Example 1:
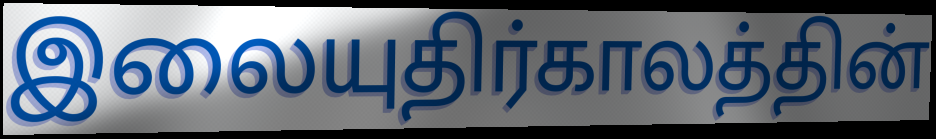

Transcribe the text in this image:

இலையுதிர்காலத்தின்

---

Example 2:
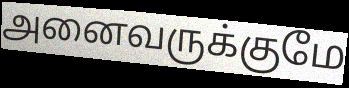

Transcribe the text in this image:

அனைவருக்குமே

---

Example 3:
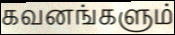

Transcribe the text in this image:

கவனங்களும்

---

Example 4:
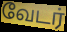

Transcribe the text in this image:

வேடர்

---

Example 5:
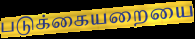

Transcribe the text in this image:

படுக்கையறையை